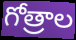
గోత్రాల